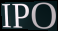
IPO